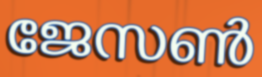
ജേസൺ